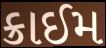
ક્રાઈમ